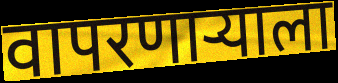
वापरणार्‍याला